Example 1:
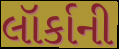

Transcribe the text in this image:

લૉર્કાની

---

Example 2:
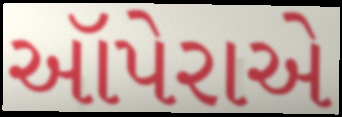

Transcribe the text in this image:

ઑપેરાએ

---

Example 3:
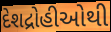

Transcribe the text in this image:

દેશદ્રોહીઓથી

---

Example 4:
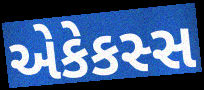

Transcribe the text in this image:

એકેકસ્સ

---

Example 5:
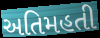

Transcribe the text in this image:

અતિમહતી